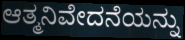
ಆತ್ಮನಿವೇದನೆಯನ್ನು